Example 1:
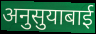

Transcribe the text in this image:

अनुसुयाबाई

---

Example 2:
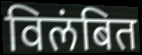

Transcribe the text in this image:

विलंबित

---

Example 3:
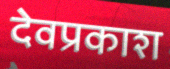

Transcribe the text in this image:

देवप्रकाश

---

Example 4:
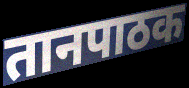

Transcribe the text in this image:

तानपाठक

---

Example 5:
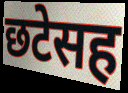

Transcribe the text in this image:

छटेसह